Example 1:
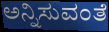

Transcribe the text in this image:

ಅನ್ನಿಸುವಂತೆ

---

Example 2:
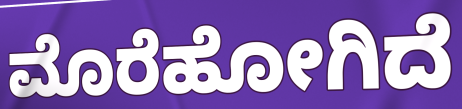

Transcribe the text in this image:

ಮೊರೆಹೋಗಿದೆ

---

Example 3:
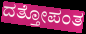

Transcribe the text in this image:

ದತ್ತೋಪಂತ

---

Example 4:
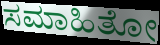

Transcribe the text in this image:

ಸಮಾಹಿತೋ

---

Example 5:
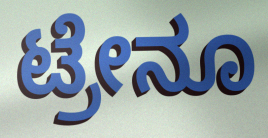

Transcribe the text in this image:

ಟ್ರೇನೂ